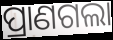
ପ୍ରାଣଗଲା